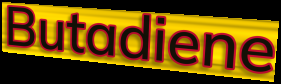
Butadiene